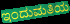
ಇಂದುಮತಿಯ